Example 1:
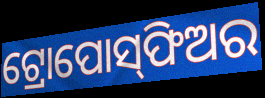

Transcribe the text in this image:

ଟ୍ରୋପୋସ୍‌ଫିଅର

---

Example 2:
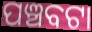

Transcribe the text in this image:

ପଞ୍ଚବଟା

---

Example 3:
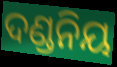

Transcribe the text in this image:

ଦଣ୍ଡନିୟ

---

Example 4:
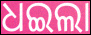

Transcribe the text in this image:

ଧଇଲା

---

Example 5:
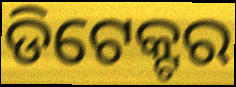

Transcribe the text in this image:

ଡିଟେକ୍ଟର